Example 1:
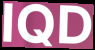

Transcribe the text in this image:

IQD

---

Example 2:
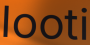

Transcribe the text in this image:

looti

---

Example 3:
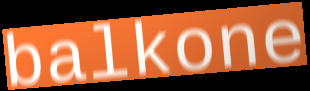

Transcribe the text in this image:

balkone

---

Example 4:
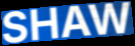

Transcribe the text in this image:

SHAW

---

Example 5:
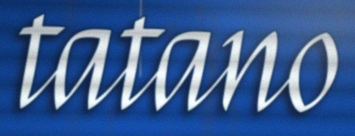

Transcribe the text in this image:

tatano